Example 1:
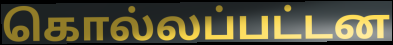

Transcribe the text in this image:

கொல்லப்பட்டன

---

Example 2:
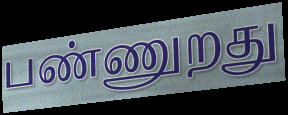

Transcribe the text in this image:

பண்ணுறது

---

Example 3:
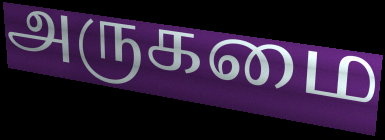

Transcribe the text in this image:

அருகமை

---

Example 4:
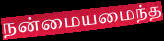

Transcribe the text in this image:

நன்மையமைந்த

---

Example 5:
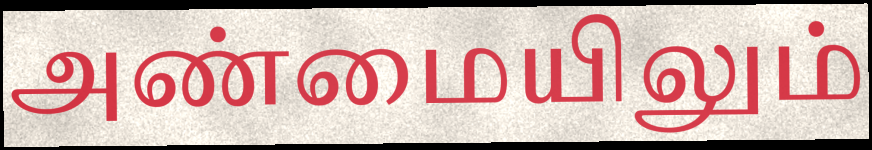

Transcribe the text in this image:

அண்மையிலும்